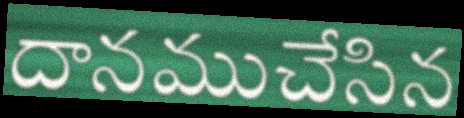
దానముచేసిన